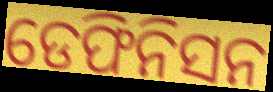
ଡେଫିନିସନ